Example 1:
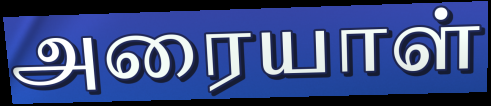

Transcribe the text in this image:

அரையாள்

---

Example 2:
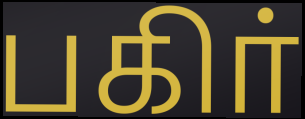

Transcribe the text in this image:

பகிர்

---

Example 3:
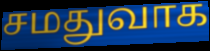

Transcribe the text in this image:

சமதுவாக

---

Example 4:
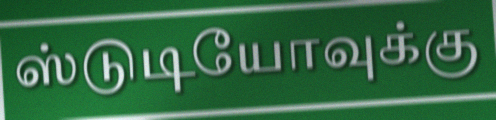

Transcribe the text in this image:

ஸ்டுடியோவுக்கு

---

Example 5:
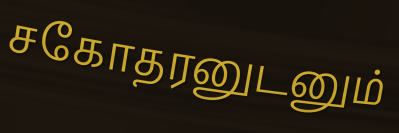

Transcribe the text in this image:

சகோதரனுடனும்